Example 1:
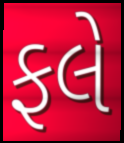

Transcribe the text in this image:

ફલે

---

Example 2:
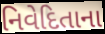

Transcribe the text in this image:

નિવેદિતાના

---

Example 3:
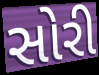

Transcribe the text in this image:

સોરી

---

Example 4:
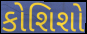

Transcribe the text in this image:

કોશિશો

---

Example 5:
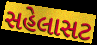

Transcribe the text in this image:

સહેલાસટ